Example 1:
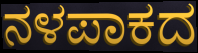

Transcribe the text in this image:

ನಳಪಾಕದ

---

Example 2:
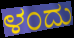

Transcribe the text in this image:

ಳಂದು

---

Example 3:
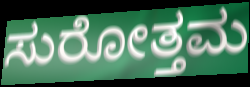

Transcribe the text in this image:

ಸುರೋತ್ತಮ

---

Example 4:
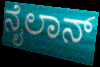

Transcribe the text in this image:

ನೈಲಾನ್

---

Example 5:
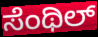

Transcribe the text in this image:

ಸೆಂಥಿಲ್